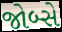
જોબ્સે